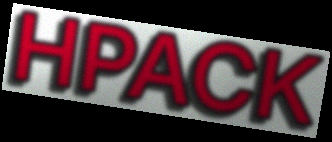
HPACK